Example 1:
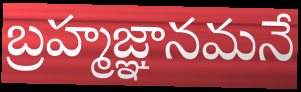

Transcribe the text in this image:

బ్రహ్మజ్ఞానమనే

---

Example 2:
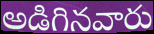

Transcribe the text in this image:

అడిగినవారు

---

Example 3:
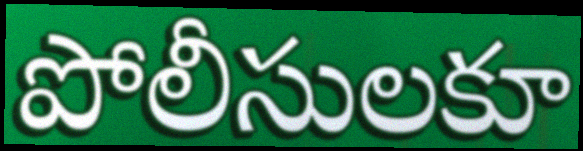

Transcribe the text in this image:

పోలీసులకూ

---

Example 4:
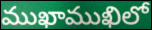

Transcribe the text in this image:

ముఖాముఖిలో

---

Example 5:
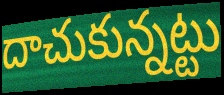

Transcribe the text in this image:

దాచుకున్నట్టు